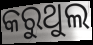
କରୁଥୁଲ